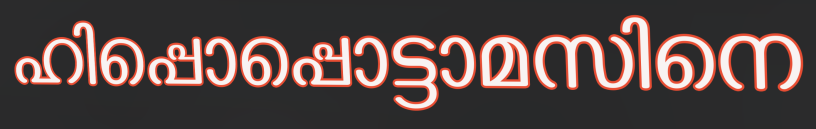
ഹിപ്പൊപ്പൊട്ടാമസിനെ